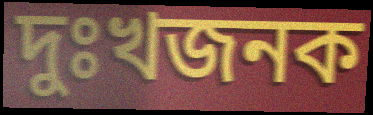
দুঃখজনক